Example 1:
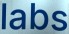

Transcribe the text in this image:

labs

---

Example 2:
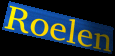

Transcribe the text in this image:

Roelen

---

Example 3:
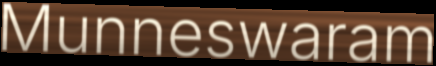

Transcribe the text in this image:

Munneswaram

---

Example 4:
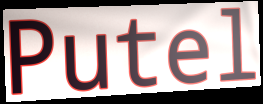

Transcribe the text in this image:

Putel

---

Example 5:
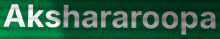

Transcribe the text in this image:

Akshararoopa